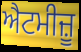
ਐਟਮੀਜ਼ੂ